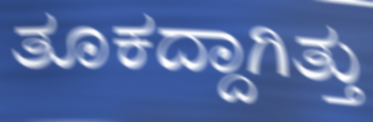
ತೂಕದ್ದಾಗಿತ್ತು